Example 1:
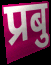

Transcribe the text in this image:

प्रबु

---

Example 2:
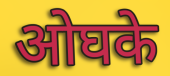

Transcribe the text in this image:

ओघके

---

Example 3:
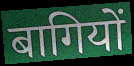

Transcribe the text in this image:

बागियों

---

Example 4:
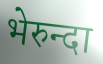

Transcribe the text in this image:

भेरुन्दा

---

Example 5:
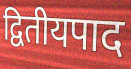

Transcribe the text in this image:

द्वितीयपाद